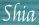
Shia